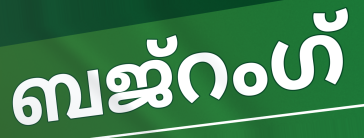
ബജ്റംഗ്